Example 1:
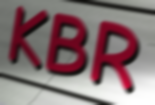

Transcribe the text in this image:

KBR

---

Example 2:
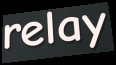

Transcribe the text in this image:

relay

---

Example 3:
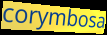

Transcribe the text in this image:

corymbosa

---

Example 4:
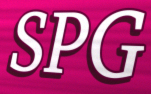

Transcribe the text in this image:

SPG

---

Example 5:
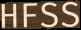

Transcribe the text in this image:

HFSS